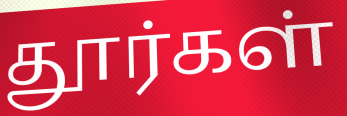
தூர்கள்